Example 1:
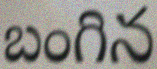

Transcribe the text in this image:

బంగిన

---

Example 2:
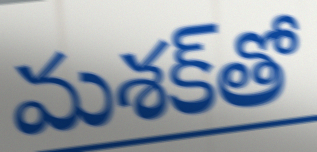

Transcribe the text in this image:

మశక్‌తో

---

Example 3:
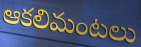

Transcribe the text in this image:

ఆకలిమంటలు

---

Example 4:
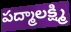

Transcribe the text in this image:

పద్మాలక్ష్మి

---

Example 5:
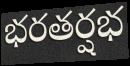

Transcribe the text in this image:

భరతర్షభ